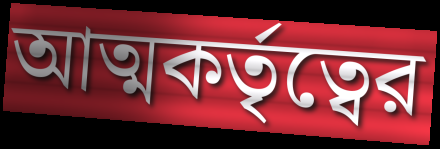
আত্মকর্তৃত্বের